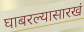
घाबरल्यासारखं